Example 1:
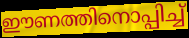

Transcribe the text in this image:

ഈണത്തിനൊപ്പിച്ച്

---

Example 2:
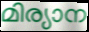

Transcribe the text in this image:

മിര്യാന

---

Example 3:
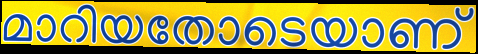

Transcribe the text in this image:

മാറിയതോടെയാണ്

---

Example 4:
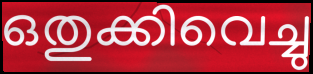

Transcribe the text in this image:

ഒതുക്കിവെച്ചു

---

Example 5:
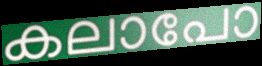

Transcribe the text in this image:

കലാപോ